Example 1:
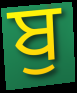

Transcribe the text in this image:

ਬੁ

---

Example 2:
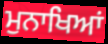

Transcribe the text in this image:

ਮੁਨਾਖਿਆਂ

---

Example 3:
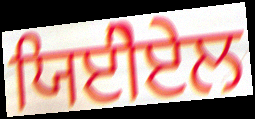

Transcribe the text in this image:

ਯਿਈੇਏਲ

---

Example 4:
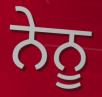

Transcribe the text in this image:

ਨੇਨੂ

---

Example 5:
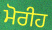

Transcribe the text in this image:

ਮੋਰੀਹ